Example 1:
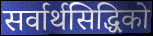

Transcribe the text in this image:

सर्वार्थसिद्धिको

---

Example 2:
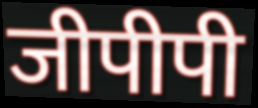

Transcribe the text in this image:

जीपीपी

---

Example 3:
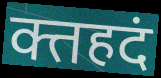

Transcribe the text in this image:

क्तहदं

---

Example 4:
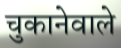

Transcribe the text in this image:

चुकानेवाले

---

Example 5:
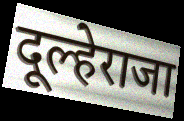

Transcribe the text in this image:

दूल्हेराजा